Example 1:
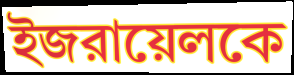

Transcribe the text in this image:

ইজরায়েলকে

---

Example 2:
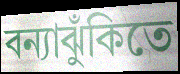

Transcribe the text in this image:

বন্যাঝুঁকিতে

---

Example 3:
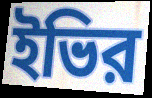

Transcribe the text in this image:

ইভির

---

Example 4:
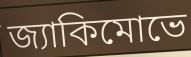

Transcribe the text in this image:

জ্যাকিমোভে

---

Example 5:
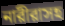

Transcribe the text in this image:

নারীরাসহ